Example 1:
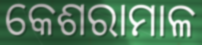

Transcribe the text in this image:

କେଶରାମାଳ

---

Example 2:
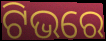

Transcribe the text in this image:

ଟିଭରେ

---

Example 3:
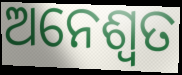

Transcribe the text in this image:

ଅନେଶ୍ଵତ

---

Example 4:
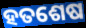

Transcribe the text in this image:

ହତଶେଷ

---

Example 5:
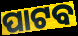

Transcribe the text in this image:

ପାଟବ